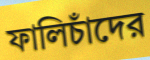
ফালিচাঁদের